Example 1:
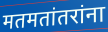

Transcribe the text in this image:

मतमतांतरांना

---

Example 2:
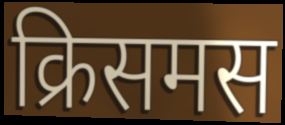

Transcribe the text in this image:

क्रिसमस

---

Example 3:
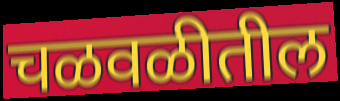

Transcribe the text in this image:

चळवळीतील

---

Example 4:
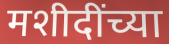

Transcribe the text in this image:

मशीदींच्या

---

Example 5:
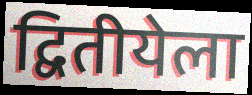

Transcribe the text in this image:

द्वितीयेला